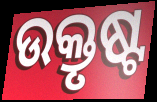
ଉକ୍ତୃଷ୍ଟ